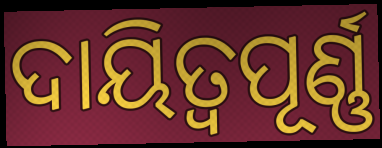
ଦାୟିତ୍ବପୂର୍ଣ୍ଣ